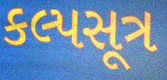
કલ્પસૂત્ર